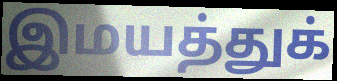
இமயத்துக்